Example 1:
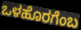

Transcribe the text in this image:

ಒಳಹೊರಗೆಂಬ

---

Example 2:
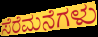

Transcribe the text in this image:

ಸೆರೆಮನೆಗಳು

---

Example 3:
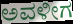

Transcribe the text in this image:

ಅವಳೀಗ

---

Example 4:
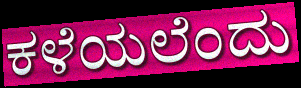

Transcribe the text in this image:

ಕಳೆಯಲೆಂದು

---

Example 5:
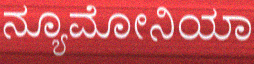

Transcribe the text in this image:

ನ್ಯೂಮೋನಿಯಾ